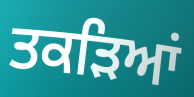
ਤਕੜਿਆਂ